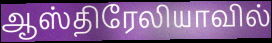
ஆஸ்திரேலியாவில்